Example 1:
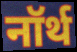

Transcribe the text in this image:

नॉर्थ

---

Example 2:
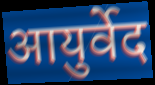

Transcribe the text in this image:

आयुर्वेद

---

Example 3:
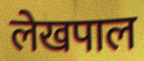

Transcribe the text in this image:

लेखपाल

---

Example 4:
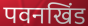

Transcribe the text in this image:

पवनखिंड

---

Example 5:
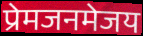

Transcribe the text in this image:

प्रेमजनमेजय